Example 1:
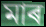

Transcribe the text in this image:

মাৰ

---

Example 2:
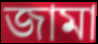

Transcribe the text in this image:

জামা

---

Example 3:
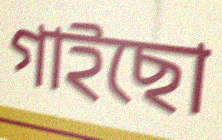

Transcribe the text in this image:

গাইছো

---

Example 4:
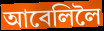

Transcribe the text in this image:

আবেলিলৈ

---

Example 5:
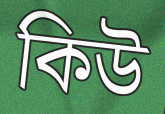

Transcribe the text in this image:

কিউ